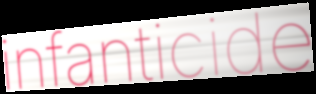
infanticide